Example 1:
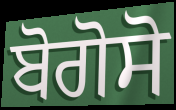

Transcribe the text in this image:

ਬੋਗੋਸੋ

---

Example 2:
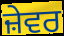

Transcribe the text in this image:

ਜ਼ੇਵਰ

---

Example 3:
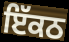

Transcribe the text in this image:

ਇੱਕਠ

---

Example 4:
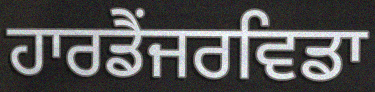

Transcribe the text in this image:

ਹਾਰਡੈਂਜਰਵਿਡਾ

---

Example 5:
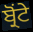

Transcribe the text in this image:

ਬ੍ਰੋਂਟੇ